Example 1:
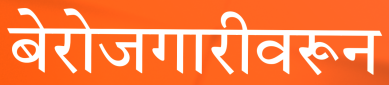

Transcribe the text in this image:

बेरोजगारीवरून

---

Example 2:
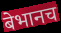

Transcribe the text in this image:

बेभानच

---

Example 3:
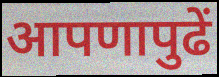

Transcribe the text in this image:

आपणापुढें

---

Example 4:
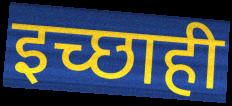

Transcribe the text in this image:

इच्छाही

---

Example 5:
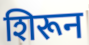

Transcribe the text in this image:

शिरून